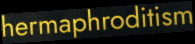
hermaphroditism